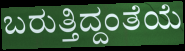
ಬರುತ್ತಿದ್ದಂತೆಯೆ